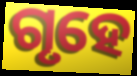
ଗୃହେ